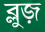
ব্লুজ়